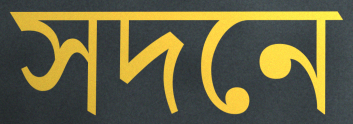
সদনে